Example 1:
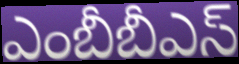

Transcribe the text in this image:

ఎంబీబీఎస్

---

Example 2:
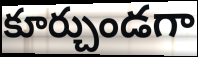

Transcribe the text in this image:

కూర్చుండగా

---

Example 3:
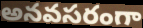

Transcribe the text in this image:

అనవసరంగా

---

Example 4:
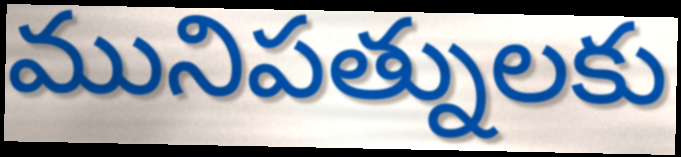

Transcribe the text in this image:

మునిపత్నులకు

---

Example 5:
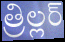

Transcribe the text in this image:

త్రిల్లర్